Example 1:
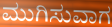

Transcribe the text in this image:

ಮುಗಿಸುವಾಗ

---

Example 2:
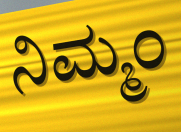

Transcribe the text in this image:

ನಿಮ್ಮಂ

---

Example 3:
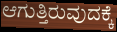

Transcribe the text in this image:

ಆಗುತ್ತಿರುವುದಕ್ಕೆ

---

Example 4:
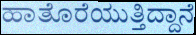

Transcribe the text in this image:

ಹಾತೊರೆಯುತ್ತಿದ್ದಾನೆ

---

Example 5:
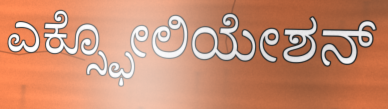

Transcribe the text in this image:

ಎಕ್ಸ್ಫೋಲಿಯೇಶನ್